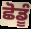
ਛੋਡੂੰ